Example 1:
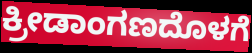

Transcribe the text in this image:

ಕ್ರೀಡಾಂಗಣದೊಳಗೆ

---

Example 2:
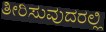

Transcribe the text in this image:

ತೀರಿಸುವುದರಲ್ಲಿ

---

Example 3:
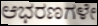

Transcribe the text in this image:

ಆಭರಣಗಳೇ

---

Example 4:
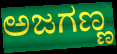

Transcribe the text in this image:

ಅಜಗಣ್ಣ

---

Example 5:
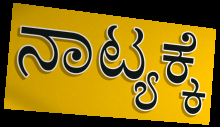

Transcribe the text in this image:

ನಾಟ್ಯಕ್ಕೆ